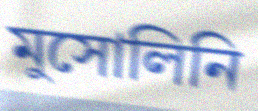
মুসোলিনি